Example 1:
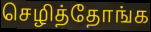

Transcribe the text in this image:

செழித்தோங்க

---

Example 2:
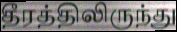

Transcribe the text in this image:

தீரத்திலிருந்து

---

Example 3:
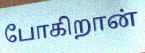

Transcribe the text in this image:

போகிறான்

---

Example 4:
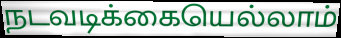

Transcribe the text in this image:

நடவடிக்கையெல்லாம்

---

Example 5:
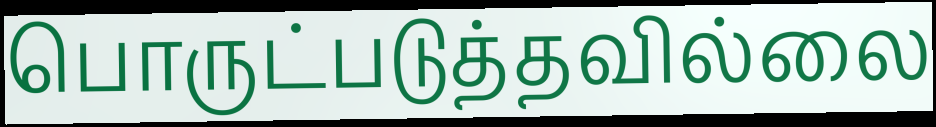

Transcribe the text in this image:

பொருட்படுத்தவில்லை